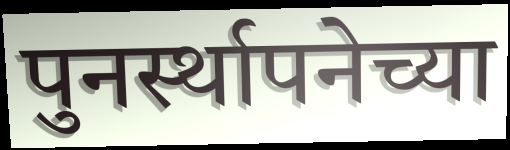
पुनर्स्थापनेच्या